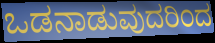
ಒಡನಾಡುವುದರಿಂದ